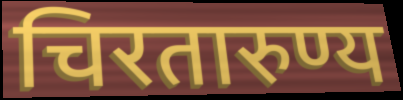
चिरतारुण्य